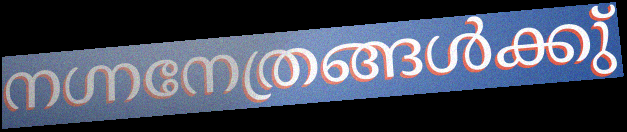
നഗ്നനേത്രങ്ങൾക്കു്